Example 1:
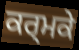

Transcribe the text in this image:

ਕਰ੍ਮਕੇ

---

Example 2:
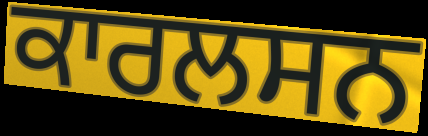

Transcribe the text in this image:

ਕਾਰਲਸਨ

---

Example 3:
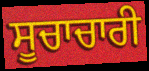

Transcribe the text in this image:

ਸੂਚਾਚਾਰੀ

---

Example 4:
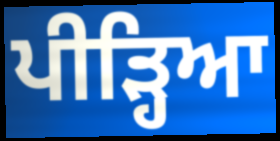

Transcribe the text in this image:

ਪੀੜ੍ਹਿਆ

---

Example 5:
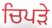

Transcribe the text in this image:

ਚਿਪੜੇ